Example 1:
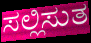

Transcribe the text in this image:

ಸಲ್ಲಿಸುತ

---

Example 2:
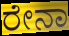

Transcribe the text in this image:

ರೇನಾ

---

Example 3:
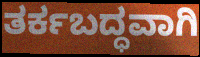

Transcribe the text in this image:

ತರ್ಕಬದ್ಧವಾಗಿ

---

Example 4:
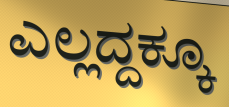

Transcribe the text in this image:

ಎಲ್ಲದ್ದಕ್ಕೂ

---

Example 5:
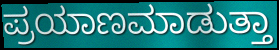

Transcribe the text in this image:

ಪ್ರಯಾಣಮಾಡುತ್ತಾ